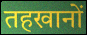
तहखानों